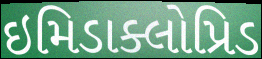
ઇમિડાક્લોપ્રિડ